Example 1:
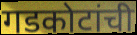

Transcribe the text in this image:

गडकोटांची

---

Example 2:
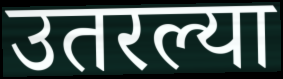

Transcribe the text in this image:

उतरल्या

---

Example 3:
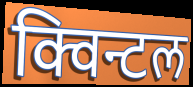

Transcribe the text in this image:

क्विन्टल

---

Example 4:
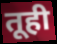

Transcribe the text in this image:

तूही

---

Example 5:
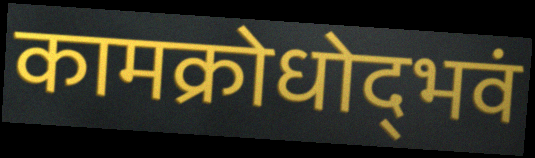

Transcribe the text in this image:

कामक्रोधोद्भवं